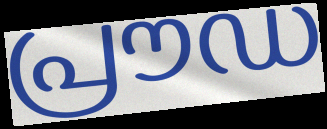
പ്രൗഡ